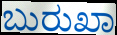
ಬುರುಖಾ